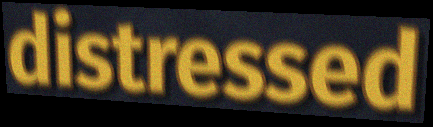
distressed